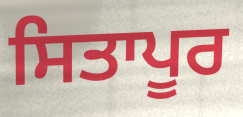
ਸਿਤਾਪੂਰ